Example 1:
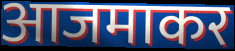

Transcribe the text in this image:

आजमाकर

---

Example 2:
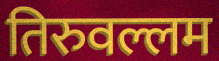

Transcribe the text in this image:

तिरुवल्लम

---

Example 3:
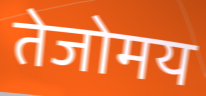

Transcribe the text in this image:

तेजोमय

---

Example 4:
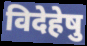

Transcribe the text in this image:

विदेहेषु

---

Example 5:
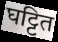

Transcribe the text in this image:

घट्टित